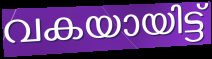
വകയായിട്ട്